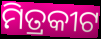
ମିତ୍ରକୀଟ